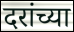
दरांच्या